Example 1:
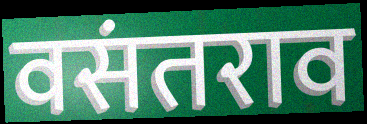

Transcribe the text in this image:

वसंतराव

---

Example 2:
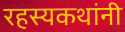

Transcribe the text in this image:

रहस्यकथांनी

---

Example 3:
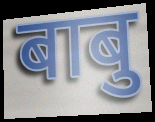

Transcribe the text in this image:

बाबु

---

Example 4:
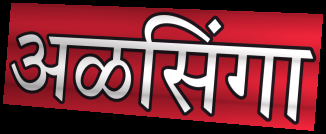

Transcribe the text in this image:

अळसिंगा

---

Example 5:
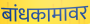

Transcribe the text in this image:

बांधकामावर